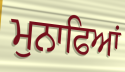
ਮੁਨਾਫਿਆਂ